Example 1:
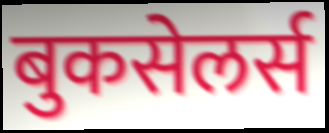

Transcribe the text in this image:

बुकसेलर्स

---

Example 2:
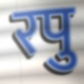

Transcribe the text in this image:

रपु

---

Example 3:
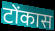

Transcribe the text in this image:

टोंकास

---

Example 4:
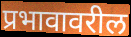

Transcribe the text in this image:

प्रभावावरील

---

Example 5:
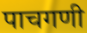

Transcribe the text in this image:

पाचगणी